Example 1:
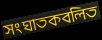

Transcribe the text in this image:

সংঘাতকবলিত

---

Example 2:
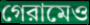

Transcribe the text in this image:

গেরামেও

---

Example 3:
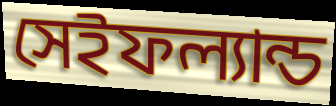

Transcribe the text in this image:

সেইফল্যান্ড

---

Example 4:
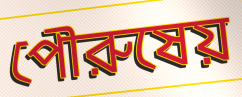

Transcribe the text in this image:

পৌরুষেয়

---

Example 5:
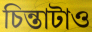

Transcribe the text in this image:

চিন্তাটাও